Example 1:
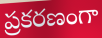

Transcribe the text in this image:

ప్రకరణంగా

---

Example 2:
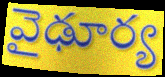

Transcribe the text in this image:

వైఢూర్య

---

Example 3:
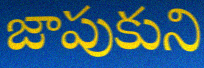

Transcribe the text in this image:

జాపుకుని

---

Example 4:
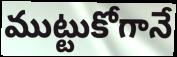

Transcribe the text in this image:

ముట్టుకోగానే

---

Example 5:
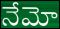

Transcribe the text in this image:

నేమో